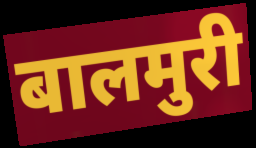
बालमुरी